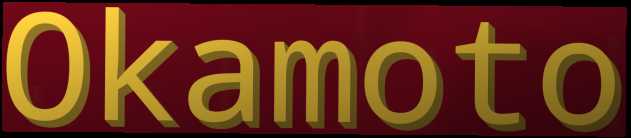
Okamoto